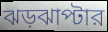
ঝড়ঝাপ্টার